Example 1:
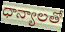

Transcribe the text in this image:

ధాన్యాలతో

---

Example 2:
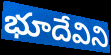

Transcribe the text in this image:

భూదేవిని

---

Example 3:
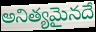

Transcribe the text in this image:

అనిత్యమైనదే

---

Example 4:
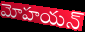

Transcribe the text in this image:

మోహయన్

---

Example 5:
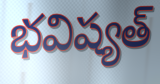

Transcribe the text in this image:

భవిష్యత్